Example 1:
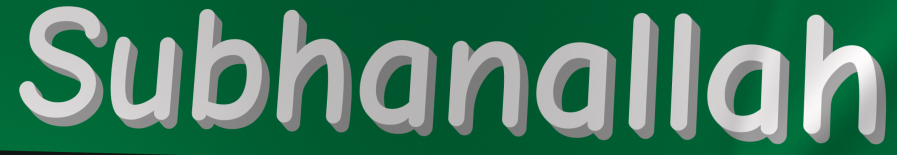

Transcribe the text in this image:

Subhanallah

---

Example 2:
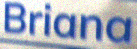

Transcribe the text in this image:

Briana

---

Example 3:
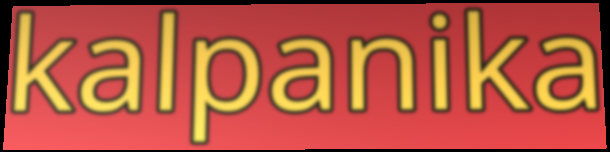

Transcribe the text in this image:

kalpanika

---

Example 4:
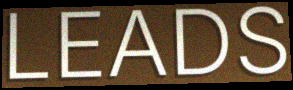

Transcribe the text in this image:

LEADS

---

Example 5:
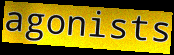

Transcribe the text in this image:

agonists